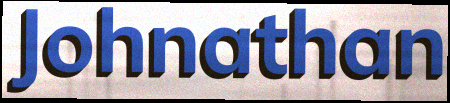
Johnathan